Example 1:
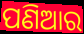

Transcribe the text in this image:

ପଣିଆର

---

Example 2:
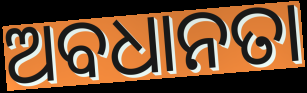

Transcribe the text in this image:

ଅବଧାନତା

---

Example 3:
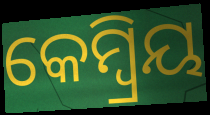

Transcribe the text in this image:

କେମ୍ବ୍ରିୟ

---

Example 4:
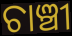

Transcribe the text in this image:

ଚାଞ୍ଚୀ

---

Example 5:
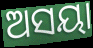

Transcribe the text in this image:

ଅସୟା